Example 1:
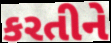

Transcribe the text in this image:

કરતીને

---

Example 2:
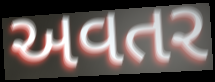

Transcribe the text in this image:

અવતર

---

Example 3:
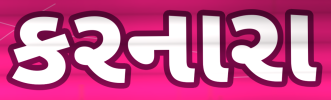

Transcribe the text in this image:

કરનારા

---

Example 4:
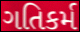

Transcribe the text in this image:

ગતિકર્મ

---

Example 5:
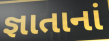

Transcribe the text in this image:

જ્ઞાતાનાં